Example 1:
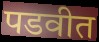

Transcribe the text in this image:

पडवीत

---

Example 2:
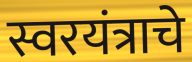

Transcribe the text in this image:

स्वरयंत्राचे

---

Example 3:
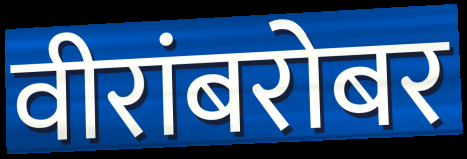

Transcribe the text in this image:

वीरांबरोबर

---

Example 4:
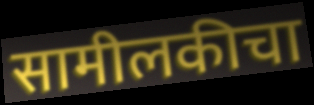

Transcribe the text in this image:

सामीलकीचा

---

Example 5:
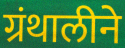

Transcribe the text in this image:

ग्रंथालीने